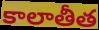
కాలాతీత